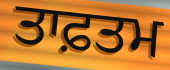
ਤਾਫ਼ਤਮ